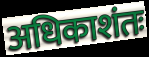
अधिकाशंतः